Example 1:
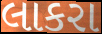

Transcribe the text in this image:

લાકરા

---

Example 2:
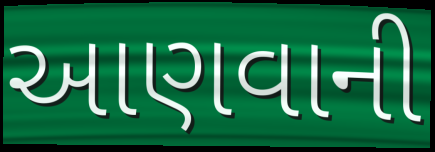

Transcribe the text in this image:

આણવાની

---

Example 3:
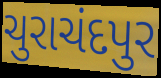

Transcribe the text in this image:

ચુરાચંદપુર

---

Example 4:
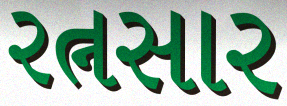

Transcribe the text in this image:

રત્નસાર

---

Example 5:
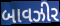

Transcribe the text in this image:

બાવઝીર